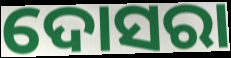
ଦୋସରା